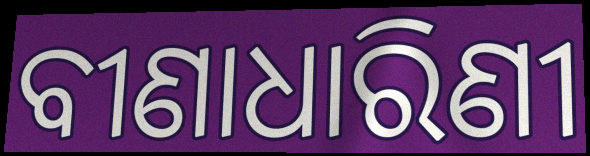
ବୀଣାଧାରିଣୀ